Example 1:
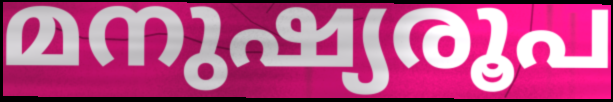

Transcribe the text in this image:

മനുഷ്യരൂപ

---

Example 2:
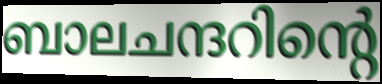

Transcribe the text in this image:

ബാലചന്ദറിന്റെ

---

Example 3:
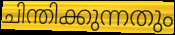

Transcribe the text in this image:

ചിന്തിക്കുന്നതും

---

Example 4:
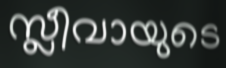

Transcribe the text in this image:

സ്ലീവായുടെ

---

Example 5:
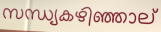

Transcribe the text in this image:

സന്ധ്യകഴിഞ്ഞാല്